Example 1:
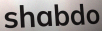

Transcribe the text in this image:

shabdo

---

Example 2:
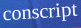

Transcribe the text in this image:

conscript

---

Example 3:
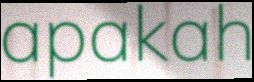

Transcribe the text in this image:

apakah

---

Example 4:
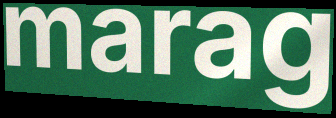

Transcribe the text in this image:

marag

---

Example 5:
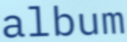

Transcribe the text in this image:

album